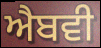
ਐਬਵੀ